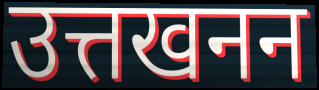
उत्तखनन